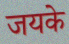
जयके